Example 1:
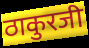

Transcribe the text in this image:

ठाकुरजी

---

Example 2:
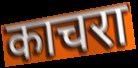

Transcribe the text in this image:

काचरा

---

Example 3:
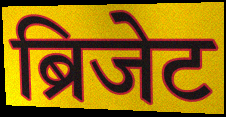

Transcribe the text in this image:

ब्रिजेट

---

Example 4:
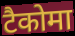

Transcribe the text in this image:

टैकोमा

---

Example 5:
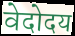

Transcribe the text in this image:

वेदोदय